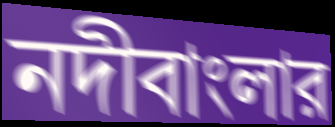
নদীবাংলার